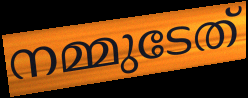
നമ്മുടേത്